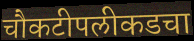
चौकटीपलीकडचा